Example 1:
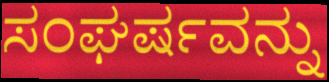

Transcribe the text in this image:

ಸಂಘರ್ಷವನ್ನು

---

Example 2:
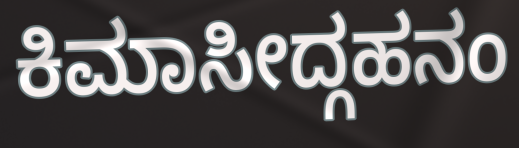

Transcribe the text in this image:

ಕಿಮಾಸೀದ್ಗಹನಂ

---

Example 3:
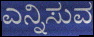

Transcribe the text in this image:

ಎನ್ನಿಸುವ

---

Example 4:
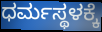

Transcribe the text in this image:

ಧರ್ಮಸ್ಥಳಕ್ಕೆ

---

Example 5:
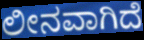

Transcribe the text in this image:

ಲೀನವಾಗಿದೆ